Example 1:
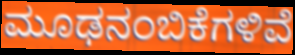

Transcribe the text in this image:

ಮೂಢನಂಬಿಕೆಗಳಿವೆ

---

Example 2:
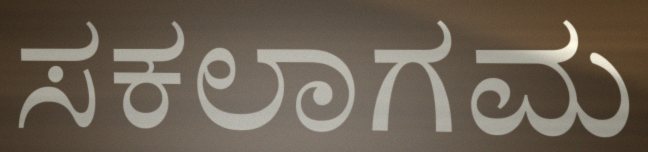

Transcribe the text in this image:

ಸಕಲಾಗಮ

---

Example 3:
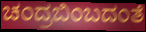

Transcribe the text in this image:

ಚಂದ್ರಬಿಂಬದಂತೆ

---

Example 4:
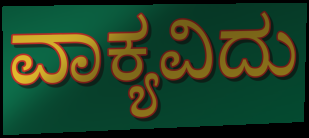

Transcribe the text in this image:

ವಾಕ್ಯವಿದು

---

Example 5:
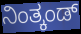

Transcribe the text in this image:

ನಿಂತ್ಕಂಡ್